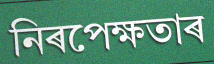
নিৰপেক্ষতাৰ